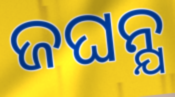
ଜଘନ୍ଯ